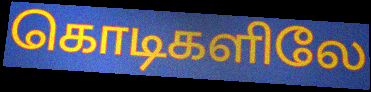
கொடிகளிலே